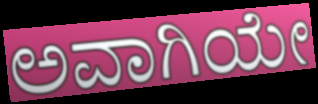
ಅವಾಗಿಯೇ